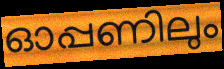
ഓപ്പണിലും